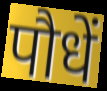
पौधें